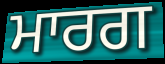
ਮਾਰਗ